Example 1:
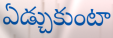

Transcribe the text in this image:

ఏడ్చుకుంటా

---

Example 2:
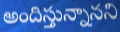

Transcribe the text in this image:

అందిస్తున్నానని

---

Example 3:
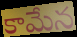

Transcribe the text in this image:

కామేన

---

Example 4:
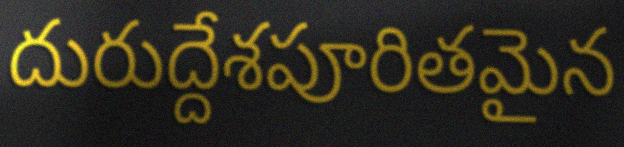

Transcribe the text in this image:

దురుద్దేశపూరితమైన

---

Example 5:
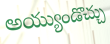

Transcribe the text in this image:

అయ్యుండొచ్చు